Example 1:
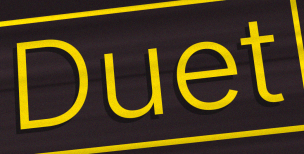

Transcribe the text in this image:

Duet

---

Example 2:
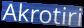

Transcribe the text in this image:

Akrotiri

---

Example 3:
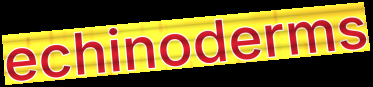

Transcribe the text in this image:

echinoderms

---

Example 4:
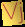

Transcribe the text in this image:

Vj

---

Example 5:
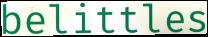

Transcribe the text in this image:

belittles